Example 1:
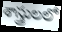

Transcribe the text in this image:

శాస్త్రులలో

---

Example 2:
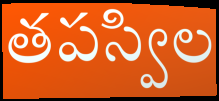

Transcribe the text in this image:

తపస్విల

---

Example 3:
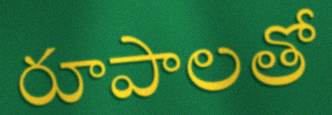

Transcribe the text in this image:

రూపాలతో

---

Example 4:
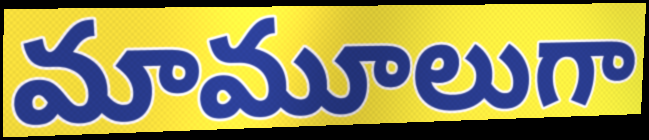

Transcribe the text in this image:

మామూలుగా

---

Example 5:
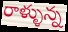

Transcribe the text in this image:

రాళ్ళున్న